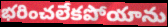
భరించలేకపోయాను